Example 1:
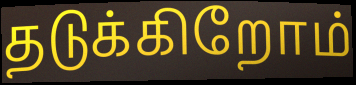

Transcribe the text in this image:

தடுக்கிறோம்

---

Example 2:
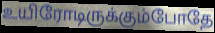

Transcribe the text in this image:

உயிரோடிருக்கும்போதே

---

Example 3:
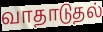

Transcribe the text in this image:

வாதாடுதல்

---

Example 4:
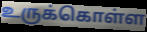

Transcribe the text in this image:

உருக்கொள்ள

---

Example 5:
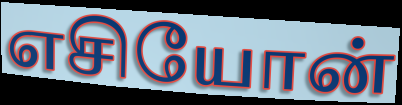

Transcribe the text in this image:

எசியோன்